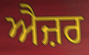
ਐਜ਼ਰ